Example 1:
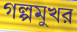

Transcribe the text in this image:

গল্পমুখর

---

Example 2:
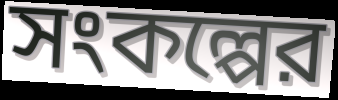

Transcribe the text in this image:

সংকল্পের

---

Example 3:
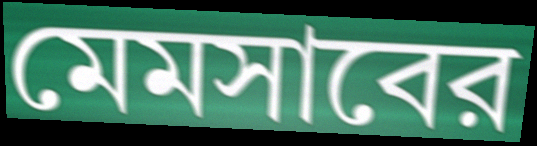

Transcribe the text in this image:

মেমসাবের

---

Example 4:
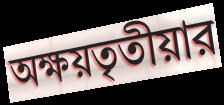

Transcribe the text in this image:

অক্ষয়তৃতীয়ার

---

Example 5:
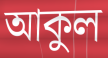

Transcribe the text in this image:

আকুল